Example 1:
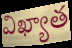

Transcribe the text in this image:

విఖ్యాత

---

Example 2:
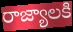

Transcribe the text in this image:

రాజ్యాలకి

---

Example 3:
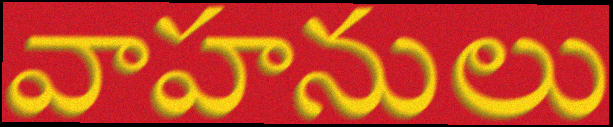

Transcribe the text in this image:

వాహనులు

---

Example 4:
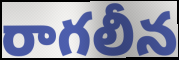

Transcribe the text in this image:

రాగలీన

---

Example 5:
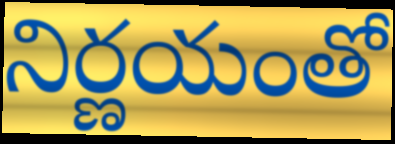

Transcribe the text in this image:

నిర్ణయంతో